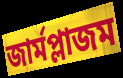
জার্মপ্লাজম